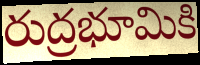
రుద్రభూమికి